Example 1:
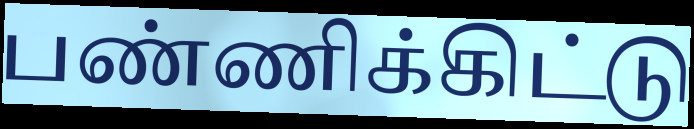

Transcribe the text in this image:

பண்ணிக்கிட்டு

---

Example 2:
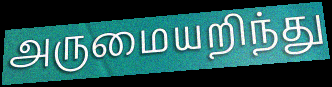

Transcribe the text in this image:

அருமையறிந்து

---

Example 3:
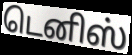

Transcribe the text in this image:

டெனிஸ்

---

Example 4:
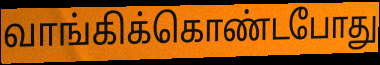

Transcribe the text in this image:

வாங்கிக்கொண்டபோது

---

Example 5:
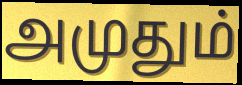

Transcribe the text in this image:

அமுதும்